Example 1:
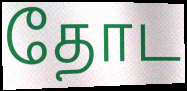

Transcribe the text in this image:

தோட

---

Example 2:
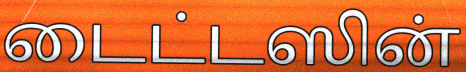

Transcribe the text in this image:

டைட்டஸின்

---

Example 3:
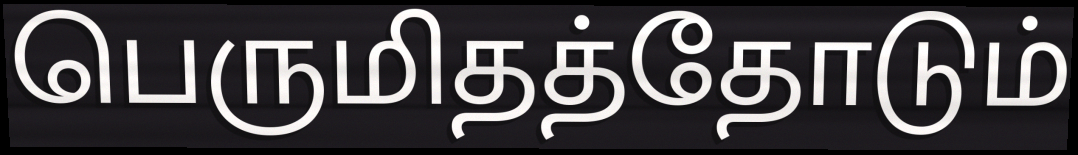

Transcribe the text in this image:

பெருமிதத்தோடும்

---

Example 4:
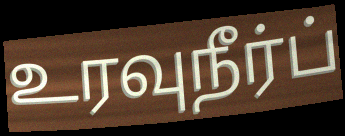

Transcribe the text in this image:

உரவுநீர்ப்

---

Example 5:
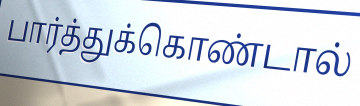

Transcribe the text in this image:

பார்த்துக்கொண்டால்